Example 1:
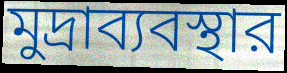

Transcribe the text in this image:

মুদ্রাব্যবস্থার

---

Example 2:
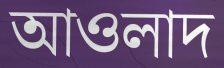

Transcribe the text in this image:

আওলাদ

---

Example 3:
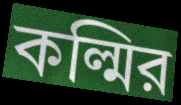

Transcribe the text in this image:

কল্মির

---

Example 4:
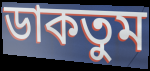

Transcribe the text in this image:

ডাকতুম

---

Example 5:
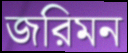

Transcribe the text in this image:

জরিমন